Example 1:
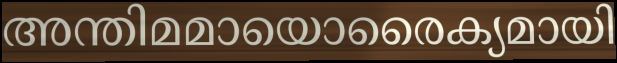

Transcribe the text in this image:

അന്തിമമായൊരൈക്യമായി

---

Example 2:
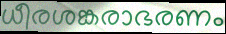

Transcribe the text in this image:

ധീരശങ്കരാഭരണം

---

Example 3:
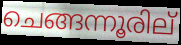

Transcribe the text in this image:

ചെങ്ങന്നൂരില്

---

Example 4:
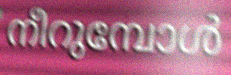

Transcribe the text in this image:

നീറുമ്പോൾ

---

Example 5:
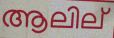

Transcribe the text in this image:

ആലില്